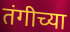
तंगीच्या